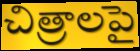
చిత్రాలపై